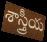
శాస్త్రీయ